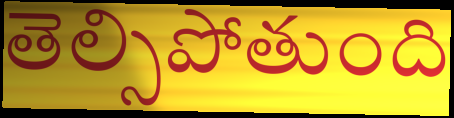
తెల్సిపోతుంది